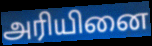
அரியினை